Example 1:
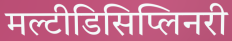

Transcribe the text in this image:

मल्टीडिसिप्लिनरी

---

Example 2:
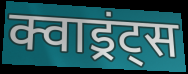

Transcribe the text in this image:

क्वाड्रंट्स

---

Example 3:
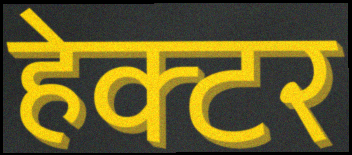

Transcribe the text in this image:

हेक्‍टर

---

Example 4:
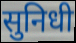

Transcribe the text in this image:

सुनिधी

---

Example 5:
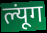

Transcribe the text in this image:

ल्यूंग